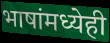
भाषांमध्येही